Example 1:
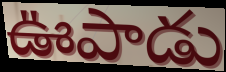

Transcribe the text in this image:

ఊపాడు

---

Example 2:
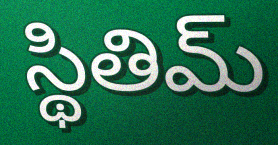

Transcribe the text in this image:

స్థితిమ్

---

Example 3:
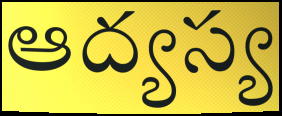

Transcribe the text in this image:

ఆద్యస్య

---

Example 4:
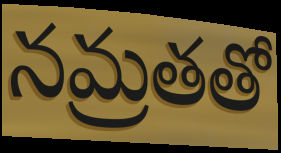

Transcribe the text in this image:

నమ్రతతో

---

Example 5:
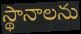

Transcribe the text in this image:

స్థానాలను